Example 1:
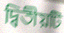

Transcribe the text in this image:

দ্বিতীয়টি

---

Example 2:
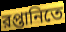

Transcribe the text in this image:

রপ্তানিতে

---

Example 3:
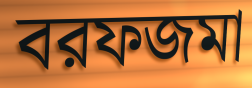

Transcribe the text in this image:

বরফজমা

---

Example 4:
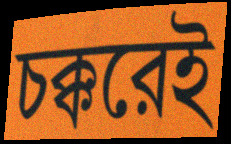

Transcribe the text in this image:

চক্করেই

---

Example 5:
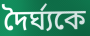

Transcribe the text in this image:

দৈর্ঘ্যকে